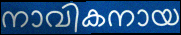
നാവികനായ